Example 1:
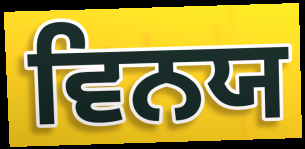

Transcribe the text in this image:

ਵਿਨਯ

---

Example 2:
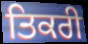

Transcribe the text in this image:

ਤਿਕਰੀ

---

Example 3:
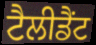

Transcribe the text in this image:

ਟੈਲੀਡੈਂਟ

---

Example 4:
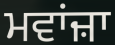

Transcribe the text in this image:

ਮਵਾਂਜ਼ਾ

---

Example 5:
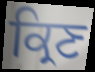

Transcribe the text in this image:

ਕ੍ਰਿਣ